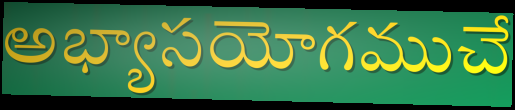
అభ్యాసయోగముచే